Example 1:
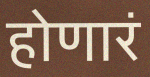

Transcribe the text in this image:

होणारं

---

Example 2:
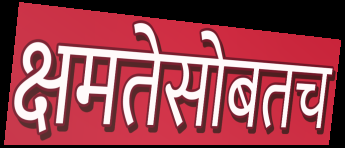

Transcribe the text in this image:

क्षमतेसोबतच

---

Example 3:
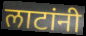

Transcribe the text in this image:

लाटांनी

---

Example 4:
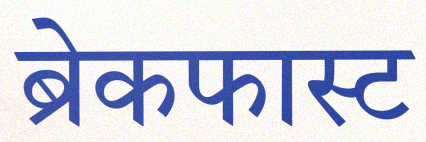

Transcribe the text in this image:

ब्रेकफास्ट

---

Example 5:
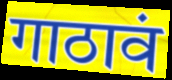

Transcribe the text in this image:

गाठावं